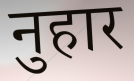
नुहार